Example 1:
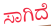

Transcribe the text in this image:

ಸಾಗಿದೆ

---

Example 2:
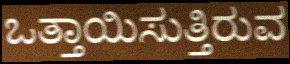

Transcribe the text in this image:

ಒತ್ತಾಯಿಸುತ್ತಿರುವ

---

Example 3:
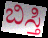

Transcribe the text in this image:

ಬಿಸ್ತಿ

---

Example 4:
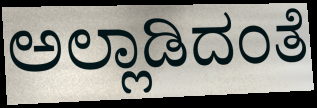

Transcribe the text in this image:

ಅಲ್ಲಾಡಿದಂತೆ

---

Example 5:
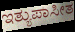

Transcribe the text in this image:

ಇತ್ಯುಪಾಸೀತ